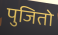
पुजितो